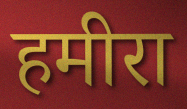
हमीरा